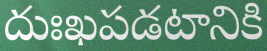
దుఃఖపడటానికి